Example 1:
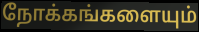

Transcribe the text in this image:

நோக்கங்களையும்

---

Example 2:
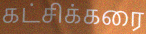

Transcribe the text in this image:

கட்சிக்கரை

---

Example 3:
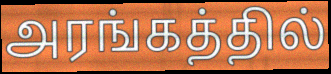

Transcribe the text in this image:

அரங்கத்தில்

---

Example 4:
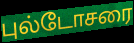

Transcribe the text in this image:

புல்டோசரை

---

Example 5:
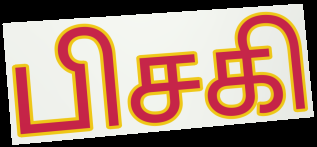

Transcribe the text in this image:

பிசகி